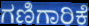
ಗಣಿಗಾರಿಕೆ